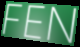
FEN